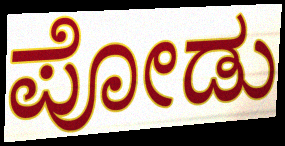
ಪೋಡು